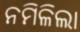
ନମିଳିଲା